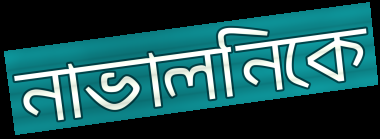
নাভালনিকে